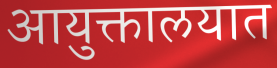
आयुक्तालयात